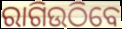
ରାଗିଉଠିବେ